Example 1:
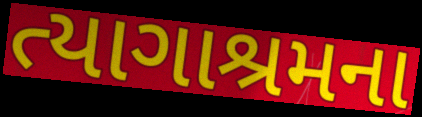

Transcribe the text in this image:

ત્યાગાશ્રમના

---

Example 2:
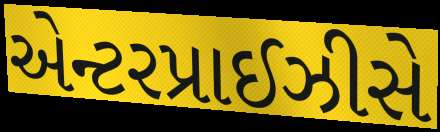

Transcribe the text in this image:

એન્ટરપ્રાઈઝીસે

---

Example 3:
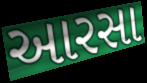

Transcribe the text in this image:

આરસા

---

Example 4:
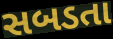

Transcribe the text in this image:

સબડતા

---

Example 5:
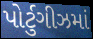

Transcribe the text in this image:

પોર્ટુગીઝમાં